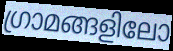
ഗ്രാമങ്ങളിലോ